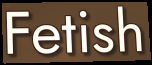
Fetish